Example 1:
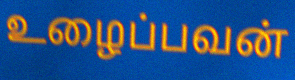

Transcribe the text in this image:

உழைப்பவன்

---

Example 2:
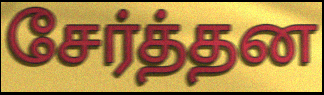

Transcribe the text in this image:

சேர்த்தன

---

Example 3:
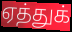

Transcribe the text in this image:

ஏத்துக்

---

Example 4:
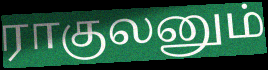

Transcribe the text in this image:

ராகுலனும்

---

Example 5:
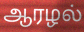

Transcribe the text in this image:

ஆரழல்